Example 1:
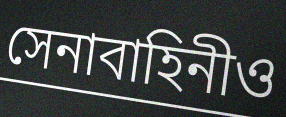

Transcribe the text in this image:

সেনাবাহিনীও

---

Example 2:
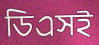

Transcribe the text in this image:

ডিএসই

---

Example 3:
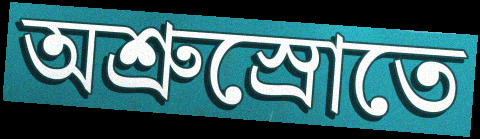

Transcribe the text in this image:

অশ্রুস্রোতে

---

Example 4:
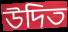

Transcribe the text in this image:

উদিত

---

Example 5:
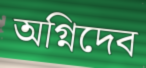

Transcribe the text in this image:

অগ্নিদেব